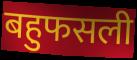
बहुफसली